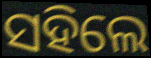
ସହିଲେ